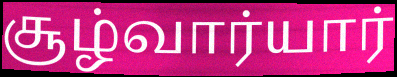
சூழ்வார்யார்